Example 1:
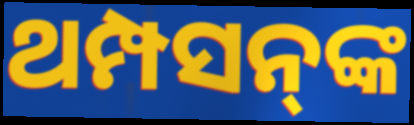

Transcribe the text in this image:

ଥମ୍ପସନ୍‌ଙ୍କ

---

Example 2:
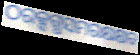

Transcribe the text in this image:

ଠରକ୍ସଗ୍ଧସମରକ୍ଷକ୍ଷବ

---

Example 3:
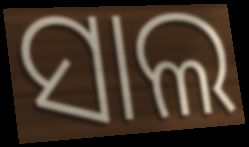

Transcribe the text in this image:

ସାଲ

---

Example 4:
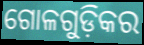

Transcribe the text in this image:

ଗୋଳଗୁଡ଼ିକର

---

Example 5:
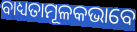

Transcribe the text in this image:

ବାଧ୍ୟତାମୂଳକଭାବେ